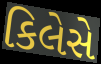
કિલેસે